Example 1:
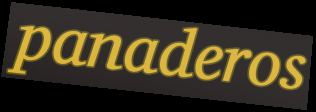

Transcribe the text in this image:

panaderos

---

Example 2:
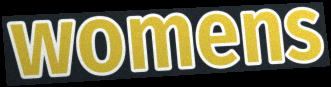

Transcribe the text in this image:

womens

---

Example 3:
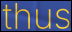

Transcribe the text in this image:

thus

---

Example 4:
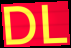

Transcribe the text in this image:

DL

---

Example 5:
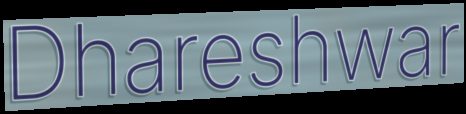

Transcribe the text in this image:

Dhareshwar